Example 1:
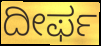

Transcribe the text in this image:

ದೀರ್ಫ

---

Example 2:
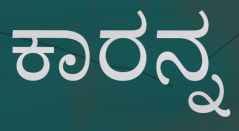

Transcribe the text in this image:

ಕಾರನ್ನ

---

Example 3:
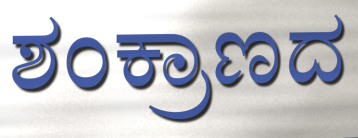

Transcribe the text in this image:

ಶಂಕ್ರಾಣದ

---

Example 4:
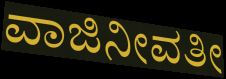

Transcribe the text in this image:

ವಾಜಿನೀವತೀ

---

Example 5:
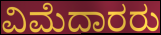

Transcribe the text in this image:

ವಿಮೆದಾರರು